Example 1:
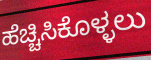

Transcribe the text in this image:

ಹೆಚ್ಚಿಸಿಕೊಳ್ಳಲು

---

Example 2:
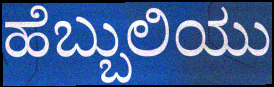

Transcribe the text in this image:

ಹೆಬ್ಬುಲಿಯು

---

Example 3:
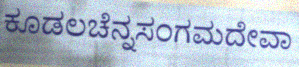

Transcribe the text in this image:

ಕೂಡಲಚೆನ್ನಸಂಗಮದೇವಾ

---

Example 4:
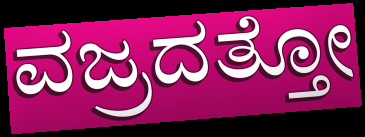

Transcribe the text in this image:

ವಜ್ರದತ್ತೋ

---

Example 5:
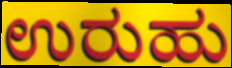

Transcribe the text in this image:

ಉರುಹು